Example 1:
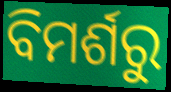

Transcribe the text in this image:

ବିମର୍ଶରୁ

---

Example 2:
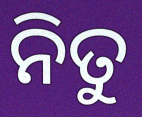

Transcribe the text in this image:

ନିତୁ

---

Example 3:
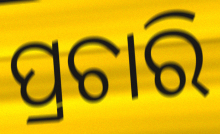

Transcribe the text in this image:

ପ୍ରଚାରି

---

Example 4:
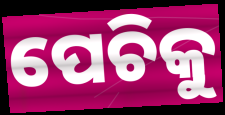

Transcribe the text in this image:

ପେଚିକୁ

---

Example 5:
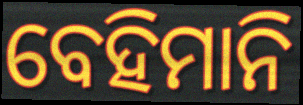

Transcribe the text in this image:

ବେହିମାନି